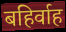
बहिर्वाह